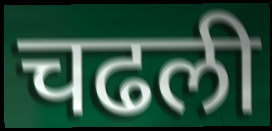
चढली